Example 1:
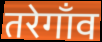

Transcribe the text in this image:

तरेगाँव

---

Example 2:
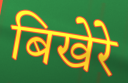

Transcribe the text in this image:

बिखेरे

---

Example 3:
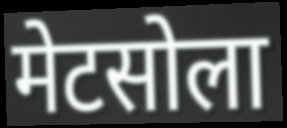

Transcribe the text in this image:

मेटसोला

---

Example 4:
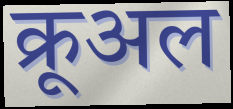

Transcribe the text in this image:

क्रूअल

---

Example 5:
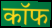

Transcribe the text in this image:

कॉफ